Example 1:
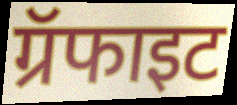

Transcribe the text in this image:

ग्रॅफाइट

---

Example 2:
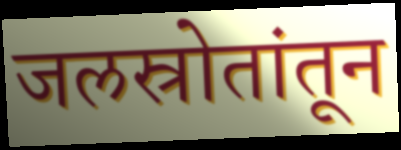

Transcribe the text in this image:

जलस्रोतांतून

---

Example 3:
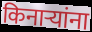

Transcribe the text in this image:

किनाऱ्यांना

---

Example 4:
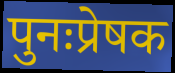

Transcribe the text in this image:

पुनःप्रेषक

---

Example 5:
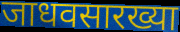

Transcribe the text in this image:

जाधवसारख्या